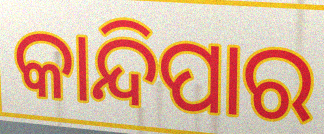
କାନ୍ଦିପାର